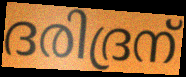
ദരിദ്രന്